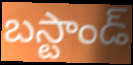
బస్టాండ్